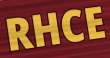
RHCE